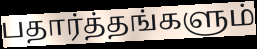
பதார்த்தங்களும்